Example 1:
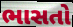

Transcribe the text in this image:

ભાસતો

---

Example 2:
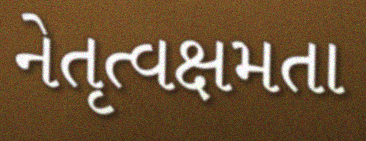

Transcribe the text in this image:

નેતૃત્વક્ષમતા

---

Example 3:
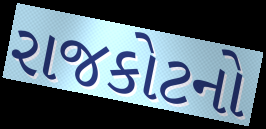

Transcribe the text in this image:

રાજકોટનો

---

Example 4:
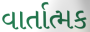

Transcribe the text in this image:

વાર્તાત્મક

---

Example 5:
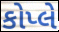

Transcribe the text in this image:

કોપ્લે